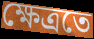
ক্ষেত্ৰতে